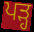
ਪੜ੍ਹ